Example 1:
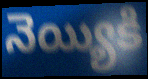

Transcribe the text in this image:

నెయ్యికి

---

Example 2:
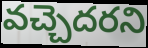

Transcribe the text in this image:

వచ్చెదరని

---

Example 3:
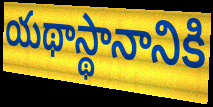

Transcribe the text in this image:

యథాస్థానానికి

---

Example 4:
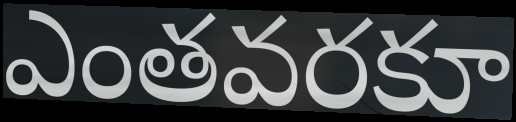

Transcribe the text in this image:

ఎంతవరకూ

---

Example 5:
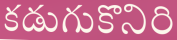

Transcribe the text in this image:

కడుగుకొనిరి